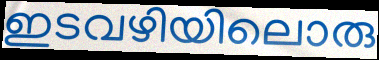
ഇടവഴിയിലൊരു